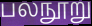
பலநூறு